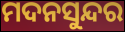
ମଦନସୁନ୍ଦର